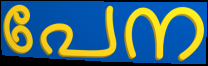
പേന